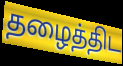
தழைத்திட